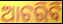
ଆଚରିବି